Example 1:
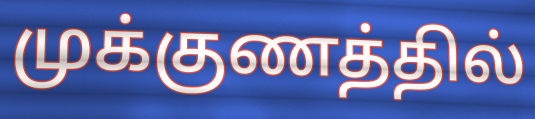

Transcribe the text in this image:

முக்குணத்தில்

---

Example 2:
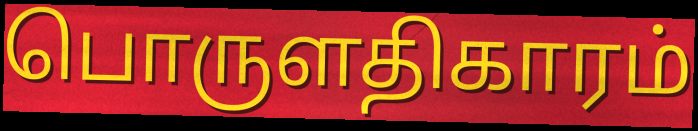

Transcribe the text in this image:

பொருளதிகாரம்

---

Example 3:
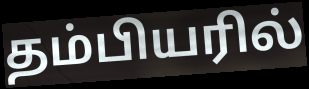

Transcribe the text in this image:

தம்பியரில்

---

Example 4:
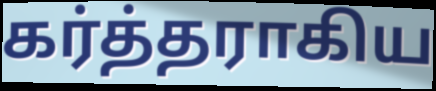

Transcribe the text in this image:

கர்த்தராகிய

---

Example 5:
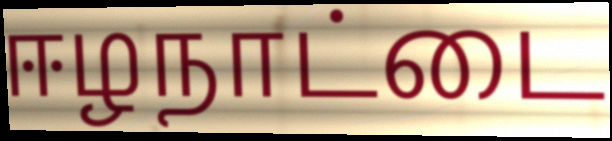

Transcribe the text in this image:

ஈழநாட்டை